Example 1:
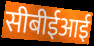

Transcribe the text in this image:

सीबीईआई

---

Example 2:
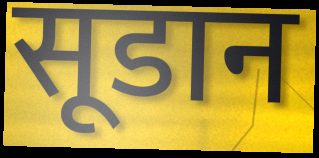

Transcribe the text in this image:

सूडान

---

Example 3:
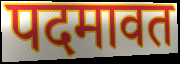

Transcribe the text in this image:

पदमावत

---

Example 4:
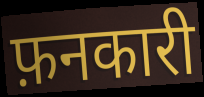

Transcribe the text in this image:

फ़नकारी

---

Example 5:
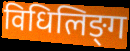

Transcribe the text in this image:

विधिलिङ्ग